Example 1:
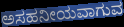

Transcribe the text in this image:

ಅಸಹನೀಯವಾಗುವ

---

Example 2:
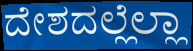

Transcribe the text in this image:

ದೇಶದಲ್ಲೆಲ್ಲಾ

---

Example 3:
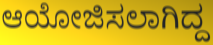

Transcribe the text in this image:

ಆಯೋಜಿಸಲಾಗಿದ್ದ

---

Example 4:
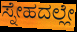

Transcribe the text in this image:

ಸ್ನೇಹದಲ್ಲೇ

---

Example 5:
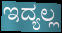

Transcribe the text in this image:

ಇದ್ಯಲ್ಲ